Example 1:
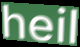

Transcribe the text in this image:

heil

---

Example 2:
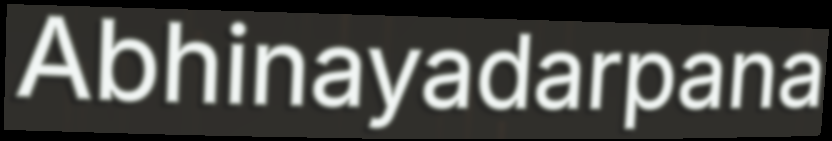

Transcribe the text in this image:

Abhinayadarpana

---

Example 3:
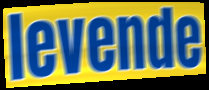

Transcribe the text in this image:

levende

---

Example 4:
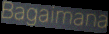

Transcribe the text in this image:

Bagaimana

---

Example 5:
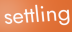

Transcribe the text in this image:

settling